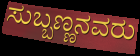
ಸುಬ್ಬಣ್ಣನವರು